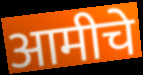
आमीचे